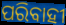
ପରିବାହୀ